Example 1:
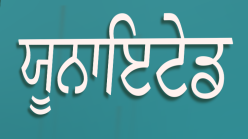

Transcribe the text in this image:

ਯੂਨਾਇਟੇਡ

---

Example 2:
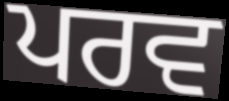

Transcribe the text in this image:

ਪਰਵ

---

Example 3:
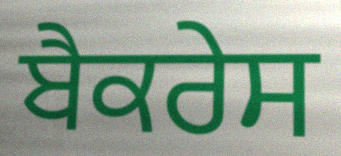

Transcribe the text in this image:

ਬੈਕਰੇਸ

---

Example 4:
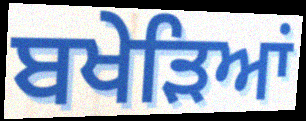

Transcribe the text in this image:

ਬਖੇੜਿਆਂ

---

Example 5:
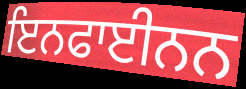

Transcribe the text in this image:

ਇਨਫਾਈਨਨ